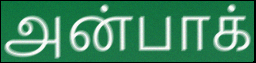
அன்பாக்